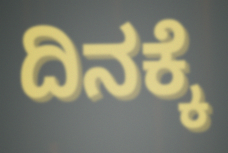
ದಿನಕ್ಕೆ